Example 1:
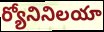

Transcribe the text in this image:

ర్యోనినిలయా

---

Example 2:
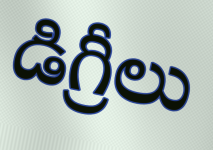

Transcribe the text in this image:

డిగ్రీలు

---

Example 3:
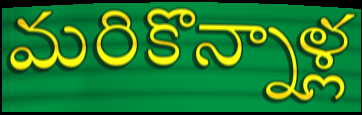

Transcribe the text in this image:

మరికొన్నాళ్ల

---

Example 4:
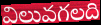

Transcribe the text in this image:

విలువగలది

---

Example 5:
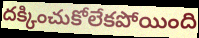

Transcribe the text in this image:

దక్కించుకోలేకపోయింది